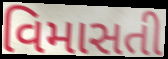
વિમાસતી